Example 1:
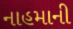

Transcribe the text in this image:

નાહમાની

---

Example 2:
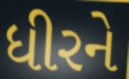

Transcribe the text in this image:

ધીરને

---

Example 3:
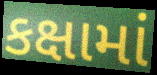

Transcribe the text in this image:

કક્ષામાં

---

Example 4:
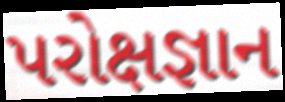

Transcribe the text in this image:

પરોક્ષજ્ઞાન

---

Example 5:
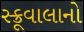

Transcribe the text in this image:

સ્ક્રૂવાલાનો